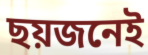
ছয়জনেই